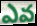
ఎవ